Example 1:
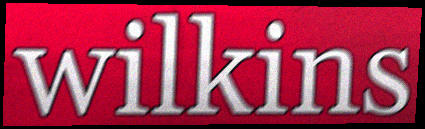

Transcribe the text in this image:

wilkins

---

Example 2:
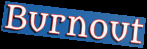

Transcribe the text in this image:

Burnout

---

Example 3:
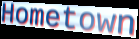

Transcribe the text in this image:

Hometown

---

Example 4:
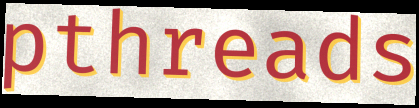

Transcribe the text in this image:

pthreads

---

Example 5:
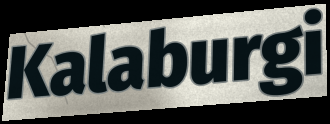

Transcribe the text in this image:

Kalaburgi